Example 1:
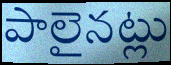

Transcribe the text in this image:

పాలైనట్లు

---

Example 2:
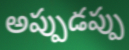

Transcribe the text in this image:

అప్పుడప్పు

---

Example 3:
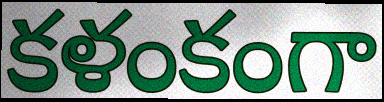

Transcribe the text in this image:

కళంకంగా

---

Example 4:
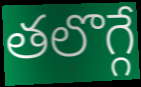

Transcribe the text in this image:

తలొగ్గే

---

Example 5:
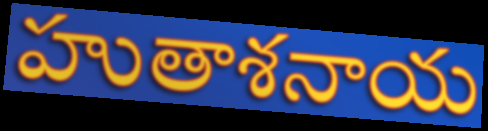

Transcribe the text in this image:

హుతాశనాయ